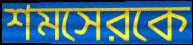
শমসেরকে